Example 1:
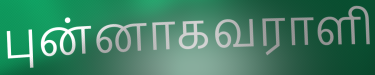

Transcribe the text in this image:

புன்னாகவராளி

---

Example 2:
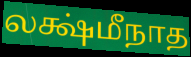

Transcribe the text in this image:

லக்ஷ்மீநாத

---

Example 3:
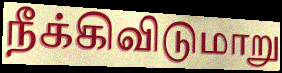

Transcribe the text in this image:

நீக்கிவிடுமாறு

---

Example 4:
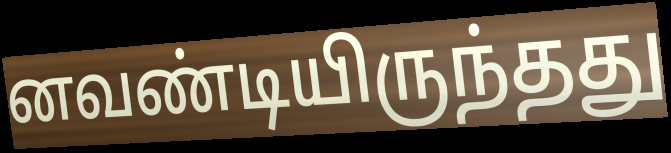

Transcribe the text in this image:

னவண்டியிருந்தது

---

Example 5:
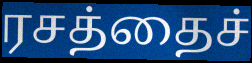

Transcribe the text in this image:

ரசத்தைச்